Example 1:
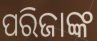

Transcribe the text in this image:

ପରିଜାଙ୍କ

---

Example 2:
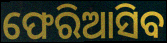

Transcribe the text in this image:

ଫେରିଆସିବ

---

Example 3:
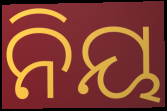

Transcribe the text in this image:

ନିୟ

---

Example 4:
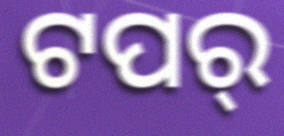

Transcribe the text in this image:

ଟପର୍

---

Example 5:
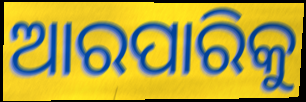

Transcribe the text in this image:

ଆରପାରିକୁ